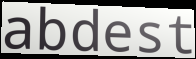
abdest